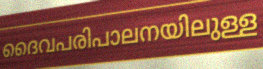
ദൈവപരിപാലനയിലുള്ള